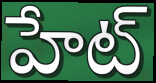
హేట్